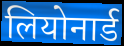
लियोनार्ड